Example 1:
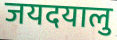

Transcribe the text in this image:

जयदयालु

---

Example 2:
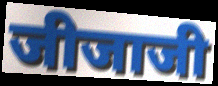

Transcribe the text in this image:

जीजाजी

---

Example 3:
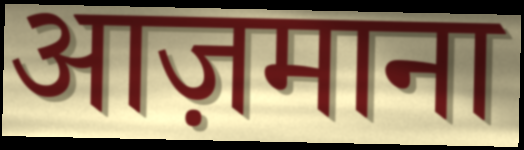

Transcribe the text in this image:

आज़माना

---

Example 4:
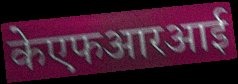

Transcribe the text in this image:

केएफआरआई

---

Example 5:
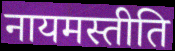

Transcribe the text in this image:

नायमस्तीति